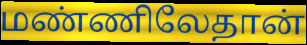
மண்ணிலேதான்